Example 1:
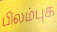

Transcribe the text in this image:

பிலம்புக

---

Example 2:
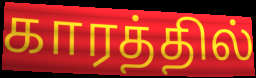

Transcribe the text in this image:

காரத்தில்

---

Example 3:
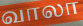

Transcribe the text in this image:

வாலா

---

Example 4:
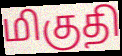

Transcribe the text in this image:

மிகுதி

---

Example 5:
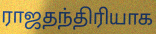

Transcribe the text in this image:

ராஜதந்திரியாக